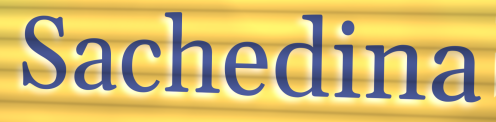
Sachedina